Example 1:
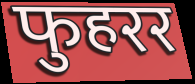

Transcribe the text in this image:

फुहरर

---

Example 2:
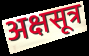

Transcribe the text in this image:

अक्षसूत्र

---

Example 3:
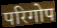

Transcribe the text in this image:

परिगोप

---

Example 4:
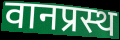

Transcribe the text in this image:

वानप्रस्थ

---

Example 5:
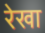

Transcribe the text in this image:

रेखा